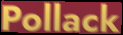
Pollack